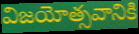
విజయోత్సవానికి